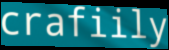
crafiily